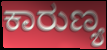
ಕಾರುಣ್ಯ